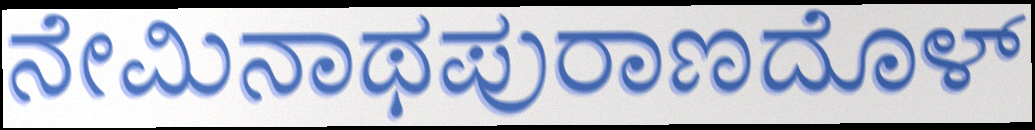
ನೇಮಿನಾಥಪುರಾಣದೊಳ್